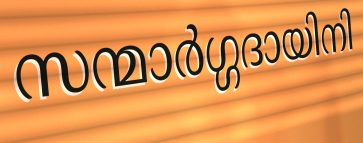
സന്മാർഗ്ഗദായിനി